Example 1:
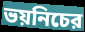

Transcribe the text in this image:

ভয়নিচের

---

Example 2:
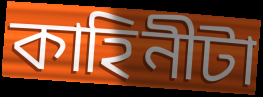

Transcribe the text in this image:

কাহিনীটা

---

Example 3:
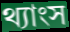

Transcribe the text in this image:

থ্যাংস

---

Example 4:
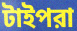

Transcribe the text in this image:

টাইপরা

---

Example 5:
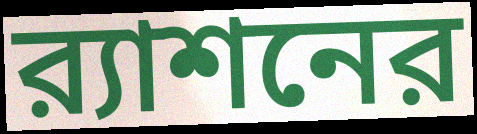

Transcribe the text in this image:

র‍্যাশনের